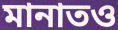
মানাতও